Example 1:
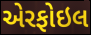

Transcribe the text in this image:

એરફોઇલ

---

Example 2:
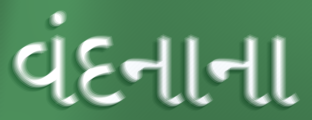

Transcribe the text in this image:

વંદનાના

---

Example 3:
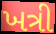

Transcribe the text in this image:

ખત્રી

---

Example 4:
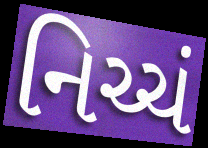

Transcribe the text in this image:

નિચ્ચં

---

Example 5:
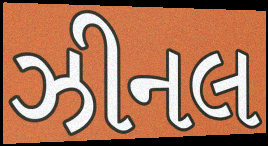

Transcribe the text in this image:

ઝીનલ